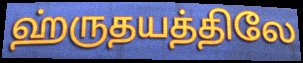
ஹ்ருதயத்திலே